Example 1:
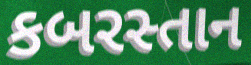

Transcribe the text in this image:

કબરસ્તાન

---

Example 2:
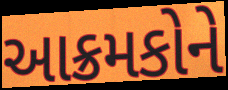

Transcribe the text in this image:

આક્રમકોને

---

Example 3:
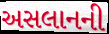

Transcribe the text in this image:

અસલાનની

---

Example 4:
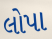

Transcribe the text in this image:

લોપા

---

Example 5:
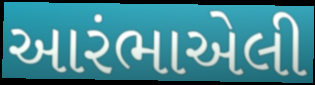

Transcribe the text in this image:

આરંભાએલી